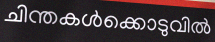
ചിന്തകൾക്കൊടുവിൽ